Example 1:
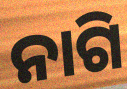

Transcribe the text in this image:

ନାଗି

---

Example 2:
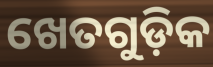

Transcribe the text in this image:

ଖେତଗୁଡ଼ିକ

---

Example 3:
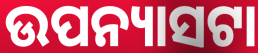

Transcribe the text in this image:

ଉପନ୍ୟାସଟା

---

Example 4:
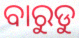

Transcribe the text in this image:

ବାରୁଡୁ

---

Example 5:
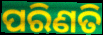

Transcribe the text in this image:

ପରିଣତି